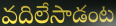
వదిలేసాడంట